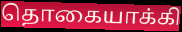
தொகையாக்கி